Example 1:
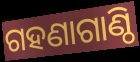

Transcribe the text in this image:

ଗହଣାଗାଣ୍ଠି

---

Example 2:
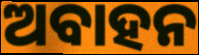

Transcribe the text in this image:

ଅବାହନ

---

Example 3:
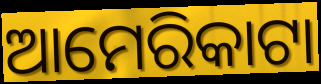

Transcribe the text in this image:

ଆମେରିକାଟା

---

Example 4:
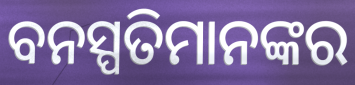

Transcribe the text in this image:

ବନସ୍ପତିମାନଙ୍କର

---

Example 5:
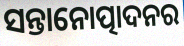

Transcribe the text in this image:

ସନ୍ତାନୋତ୍ପାଦନର